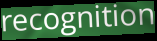
recognition